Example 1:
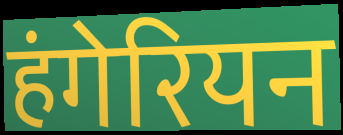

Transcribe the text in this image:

हंगेरियन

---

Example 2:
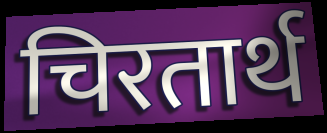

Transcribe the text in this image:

चिरतार्थ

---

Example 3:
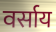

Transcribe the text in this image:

वर्साय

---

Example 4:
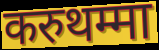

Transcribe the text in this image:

करुथम्मा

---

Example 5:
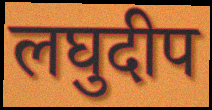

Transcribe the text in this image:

लघुदीप